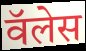
वॅलेस